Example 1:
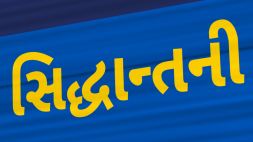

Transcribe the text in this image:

સિદ્ધાન્તની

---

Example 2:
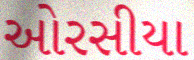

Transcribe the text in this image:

ઓરસીયા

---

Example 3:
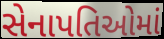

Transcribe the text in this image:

સેનાપતિઓમાં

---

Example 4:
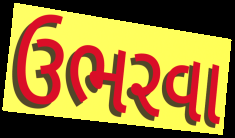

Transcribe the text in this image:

ઉભરવા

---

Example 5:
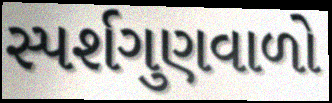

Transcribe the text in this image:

સ્પર્શગુણવાળો